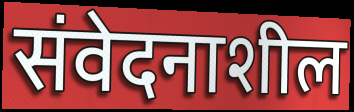
संवेदनाशील